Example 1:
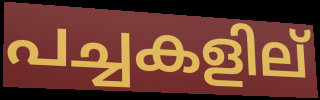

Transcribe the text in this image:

പച്ചകളില്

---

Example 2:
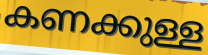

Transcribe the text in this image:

കണക്കുള്ള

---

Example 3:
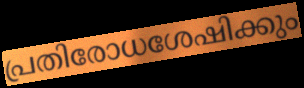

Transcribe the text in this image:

പ്രതിരോധശേഷിക്കും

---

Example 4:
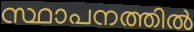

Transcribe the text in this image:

സ്ഥാപനത്തിൽ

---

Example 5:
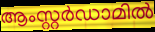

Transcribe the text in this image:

ആംസ്റ്റർഡാമിൽ